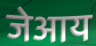
जेआय